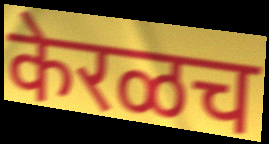
केरळच